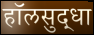
हॉलसुद्धा